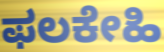
ಫಲಕೇಹಿ